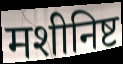
मशीनिष्ट